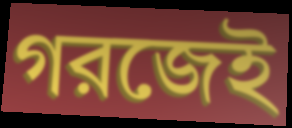
গরজেই